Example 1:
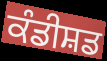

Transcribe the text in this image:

ਕੰਡੀਸ਼ਡ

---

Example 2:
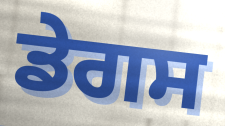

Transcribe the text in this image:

ਡੇਗਸ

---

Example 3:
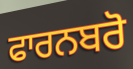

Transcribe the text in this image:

ਫਾਰਨਬਰੋ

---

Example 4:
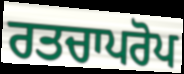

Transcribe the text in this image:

ਰਤਚਾਪਰੋਪ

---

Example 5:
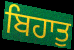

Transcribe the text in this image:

ਬਿਹਾਤੁ